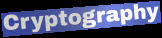
Cryptography